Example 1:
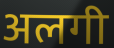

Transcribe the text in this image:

अलगी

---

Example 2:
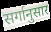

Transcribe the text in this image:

सर्गानुसार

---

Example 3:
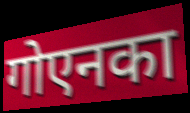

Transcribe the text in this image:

गोएनका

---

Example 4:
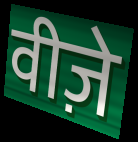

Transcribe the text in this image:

वीज़े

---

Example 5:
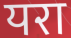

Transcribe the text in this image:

यरा